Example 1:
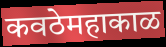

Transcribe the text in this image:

कवठेमहाकाळ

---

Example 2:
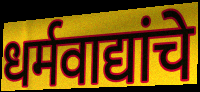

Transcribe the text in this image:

धर्मवाद्यांचे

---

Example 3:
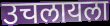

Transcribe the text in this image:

उचलायला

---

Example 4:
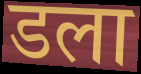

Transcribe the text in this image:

डला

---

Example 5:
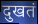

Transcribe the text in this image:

दुखतं